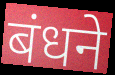
बंधने